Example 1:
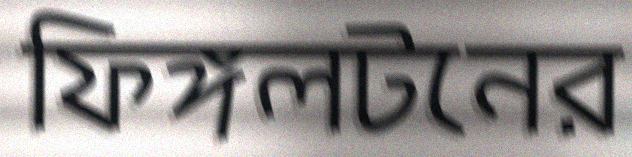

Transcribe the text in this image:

ফিঙ্গলটনের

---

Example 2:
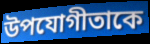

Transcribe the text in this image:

উপযোগীতাকে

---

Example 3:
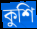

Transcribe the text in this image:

কুশি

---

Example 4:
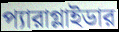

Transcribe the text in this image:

প্যারাগ্লাইডার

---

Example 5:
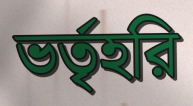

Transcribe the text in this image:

ভর্তৃহরি